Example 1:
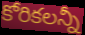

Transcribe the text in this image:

కోరికలన్నీ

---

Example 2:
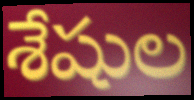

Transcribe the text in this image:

శేషుల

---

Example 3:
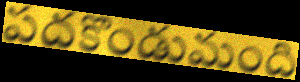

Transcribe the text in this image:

పదకొండుమంది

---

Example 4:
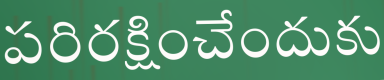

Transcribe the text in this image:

పరిరక్షించేందుకు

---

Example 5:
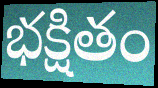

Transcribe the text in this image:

భక్షితం